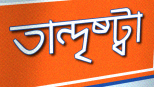
তান্দৃষ্ট্বা